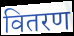
वितरण